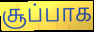
சூப்பாக